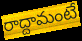
రాద్దామంటే